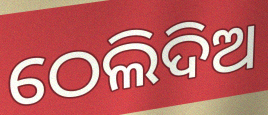
ଠେଲିଦିଅ